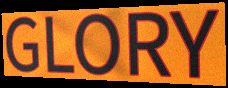
GLORY